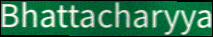
Bhattacharyya